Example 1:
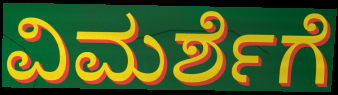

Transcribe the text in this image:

ವಿಮರ್ಶೆಗೆ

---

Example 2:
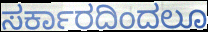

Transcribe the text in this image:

ಸರ್ಕಾರದಿಂದಲೂ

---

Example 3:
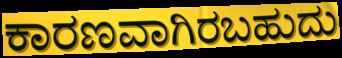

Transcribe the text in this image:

ಕಾರಣವಾಗಿರಬಹುದು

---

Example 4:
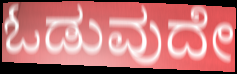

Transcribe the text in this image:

ಓಡುವುದೇ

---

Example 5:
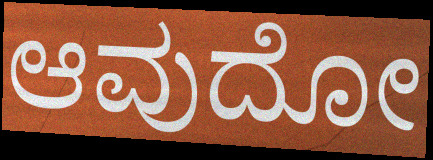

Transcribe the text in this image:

ಆವುದೋ